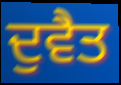
ਦੁਵੈਤ